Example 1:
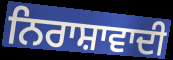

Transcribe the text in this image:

ਨਿਰਾਸ਼ਾਵਾਦੀ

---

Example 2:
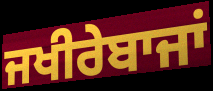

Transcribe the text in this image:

ਜਖੀਰੇਬਾਜਾਂ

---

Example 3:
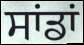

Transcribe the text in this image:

ਸਾਂਡਾਂ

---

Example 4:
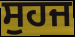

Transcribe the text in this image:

ਸੁਹਜ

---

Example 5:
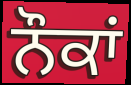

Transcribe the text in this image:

ਨੌਕਾਂ